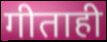
गीताही